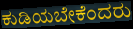
ಕುಡಿಯಬೇಕೆಂದರು